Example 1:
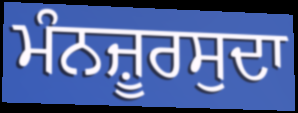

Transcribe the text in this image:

ਮੰਨਜ਼ੂਰਸੁਦਾ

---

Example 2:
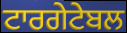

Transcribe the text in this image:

ਟਾਰਗੇਟੇਬਲ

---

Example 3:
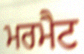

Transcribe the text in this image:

ਮਰਮੈਟ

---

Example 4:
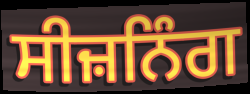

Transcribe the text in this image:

ਸੀਜ਼ਨਿੰਗ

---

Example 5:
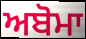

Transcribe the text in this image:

ਅਬੋਮਾ